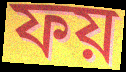
ফয়